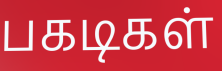
பகடிகள்